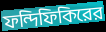
ফন্দিফিকিরের